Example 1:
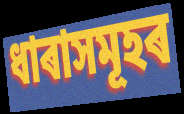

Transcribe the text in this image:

ধাৰাসমূহৰ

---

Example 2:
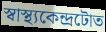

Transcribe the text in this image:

স্বাস্থ্যকেন্দ্ৰটোত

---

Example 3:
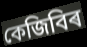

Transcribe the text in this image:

কেজিবিৰ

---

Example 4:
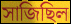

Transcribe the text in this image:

সাজিছিল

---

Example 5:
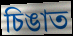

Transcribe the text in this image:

চিঙাত